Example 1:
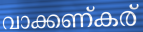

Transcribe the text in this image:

വാക്കണ്കര്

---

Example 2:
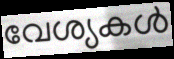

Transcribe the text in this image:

വേശ്യകൾ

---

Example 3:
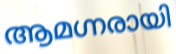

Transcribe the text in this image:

ആമഗ്നരായി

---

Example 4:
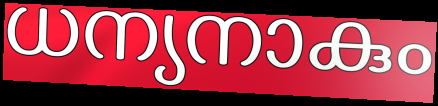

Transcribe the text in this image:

ധന്യനാകും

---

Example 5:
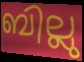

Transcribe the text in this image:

ബില്ലു